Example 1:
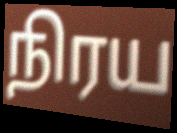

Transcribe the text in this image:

நிரய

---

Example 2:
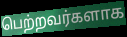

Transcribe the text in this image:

பெற்றவர்களாக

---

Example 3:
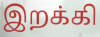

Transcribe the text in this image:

இறக்கி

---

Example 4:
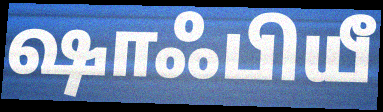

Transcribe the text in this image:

ஷாஃபியீ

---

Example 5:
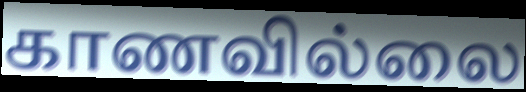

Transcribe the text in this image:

காணவில்லை